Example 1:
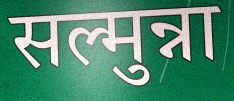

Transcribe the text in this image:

सल्मुन्ना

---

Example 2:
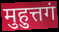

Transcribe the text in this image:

मुहुत्तगं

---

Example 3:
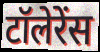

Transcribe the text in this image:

टॉलेरेंस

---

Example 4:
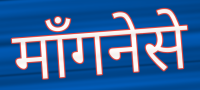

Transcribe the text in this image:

माँगनेसे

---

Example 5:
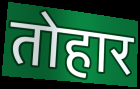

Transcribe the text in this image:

तोहार